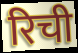
रिची